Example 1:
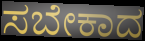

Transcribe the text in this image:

ಸಬೇಕಾದ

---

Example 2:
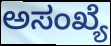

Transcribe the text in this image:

ಅಸಂಖ್ಯೆ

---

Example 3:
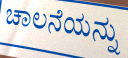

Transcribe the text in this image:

ಚಾಲನೆಯನ್ನು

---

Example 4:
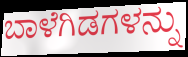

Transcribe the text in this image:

ಬಾಳೆಗಿಡಗಳನ್ನು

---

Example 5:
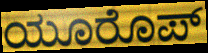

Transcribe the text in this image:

ಯೂರೊಪ್